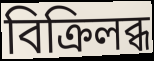
বিক্রিলব্ধ